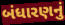
બંધારણનું